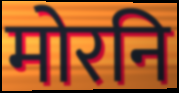
मोरनि